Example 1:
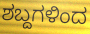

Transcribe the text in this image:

ಶಬ್ದಗಳಿಂದ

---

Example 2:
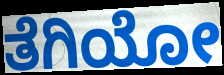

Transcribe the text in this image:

ತೆಗಿಯೋ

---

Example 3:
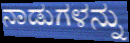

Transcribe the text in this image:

ನಾಡುಗಳನ್ನು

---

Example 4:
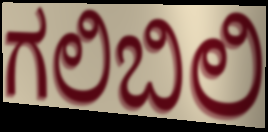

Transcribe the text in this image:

ಗಲಿಬಿಲಿ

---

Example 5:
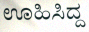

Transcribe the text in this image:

ಊಹಿಸಿದ್ದ